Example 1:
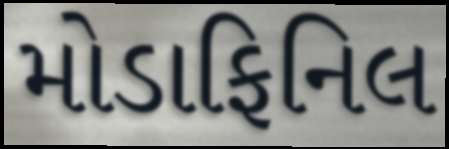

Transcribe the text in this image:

મોડાફિનિલ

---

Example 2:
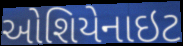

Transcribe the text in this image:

ઓશિયેનાઇટ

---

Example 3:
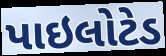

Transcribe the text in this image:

પાઇલોટેડ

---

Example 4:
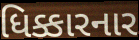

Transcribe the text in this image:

ધિક્કારનાર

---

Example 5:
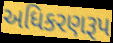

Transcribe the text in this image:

અધિકરણરૂપ